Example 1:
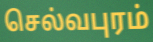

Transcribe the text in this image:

செல்வபுரம்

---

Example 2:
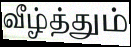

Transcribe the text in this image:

வீழ்த்தும்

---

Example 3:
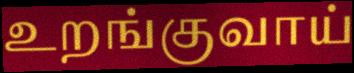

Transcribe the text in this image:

உறங்குவாய்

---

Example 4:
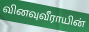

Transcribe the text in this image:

வினவுவீராயின்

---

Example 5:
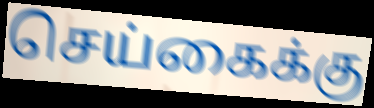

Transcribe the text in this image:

செய்கைக்கு